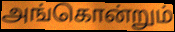
அங்கொன்றும்